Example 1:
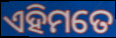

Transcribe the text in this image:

ଏହିମତେ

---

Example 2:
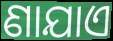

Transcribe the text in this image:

ଣାଯାଏ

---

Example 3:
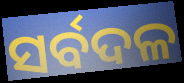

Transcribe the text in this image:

ସର୍ବଦଳ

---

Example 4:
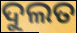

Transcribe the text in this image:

ଦୁଲତ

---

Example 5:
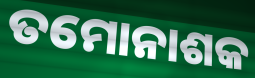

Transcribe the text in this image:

ତମୋନାଶକ